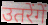
उतरेंगें